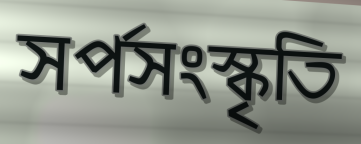
সর্পসংস্কৃতি